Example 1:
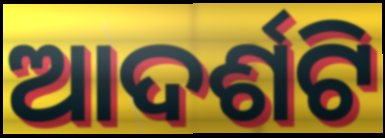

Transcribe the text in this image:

ଆଦର୍ଶଟି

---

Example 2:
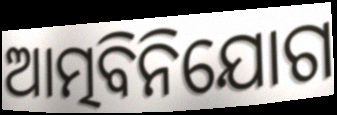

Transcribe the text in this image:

ଆତ୍ମବିନିଯୋଗ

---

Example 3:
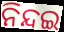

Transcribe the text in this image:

ନିନ୍ଦଇ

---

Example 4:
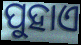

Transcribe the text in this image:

ପୁହାଏ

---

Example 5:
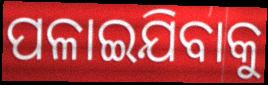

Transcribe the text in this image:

ପଳାଇଯିବାକୁ